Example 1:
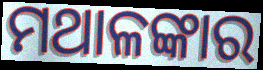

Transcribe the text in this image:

ମଥାଳଙ୍କାର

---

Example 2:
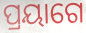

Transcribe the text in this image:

ପ୍ରୟାଗେ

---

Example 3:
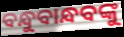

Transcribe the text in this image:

ବନ୍ଧୁବାନ୍ଧବଙ୍କୁ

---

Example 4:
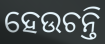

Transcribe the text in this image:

ହେଉଚନ୍ତି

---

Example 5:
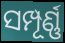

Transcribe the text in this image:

ସମ୍ପୂର୍ଣ୍ଣ